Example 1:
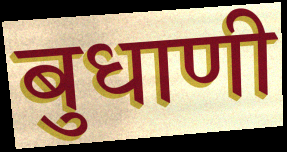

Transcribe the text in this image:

बुधाणी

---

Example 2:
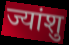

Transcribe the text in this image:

ज्यांशु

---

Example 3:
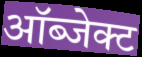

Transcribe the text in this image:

ऑब्‍जेक्‍ट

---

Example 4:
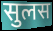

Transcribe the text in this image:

सुलस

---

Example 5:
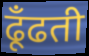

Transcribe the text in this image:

ढूँढती